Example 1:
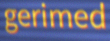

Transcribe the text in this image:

gerimed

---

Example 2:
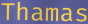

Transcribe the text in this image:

Thamas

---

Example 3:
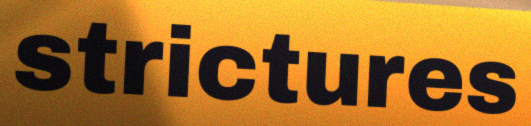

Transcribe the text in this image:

strictures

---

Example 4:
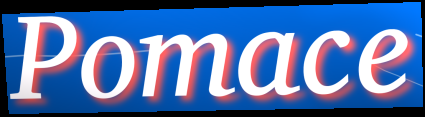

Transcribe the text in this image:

Pomace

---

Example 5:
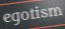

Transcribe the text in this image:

egotism